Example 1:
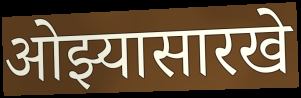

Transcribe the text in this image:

ओझ्यासारखे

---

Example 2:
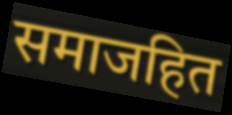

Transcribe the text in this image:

समाजहित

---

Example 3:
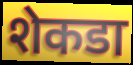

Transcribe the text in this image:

शेकडा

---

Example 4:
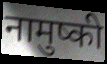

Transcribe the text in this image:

नामुष्की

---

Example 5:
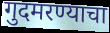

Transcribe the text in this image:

गुदमरण्याचा